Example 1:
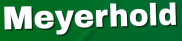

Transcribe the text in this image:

Meyerhold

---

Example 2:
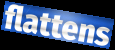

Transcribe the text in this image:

flattens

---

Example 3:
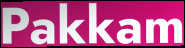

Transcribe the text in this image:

Pakkam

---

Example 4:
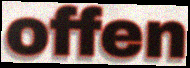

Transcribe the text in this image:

offen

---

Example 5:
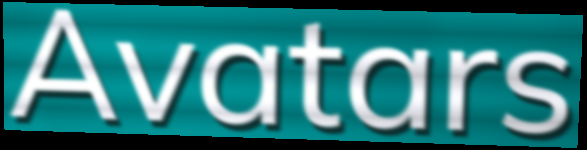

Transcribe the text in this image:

Avatars